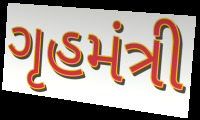
ગૃહમંત્રી